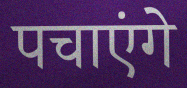
पचाएंगे